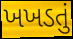
ખખડતું